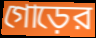
গোড়ের